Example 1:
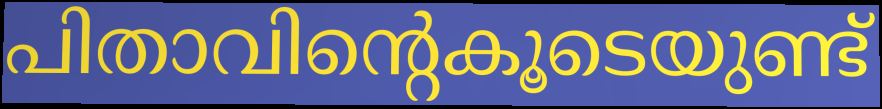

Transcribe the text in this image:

പിതാവിന്റെകൂടെയുണ്ട്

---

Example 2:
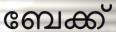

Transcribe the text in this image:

ബേക്ക്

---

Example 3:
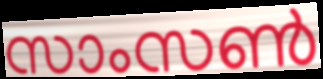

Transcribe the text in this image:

സാംസൺ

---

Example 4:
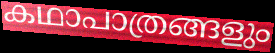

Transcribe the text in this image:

കഥാപാത്രങ്ങളും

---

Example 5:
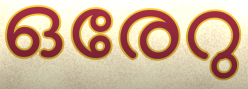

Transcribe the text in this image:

ഒരേറു